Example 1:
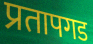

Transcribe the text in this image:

प्रतापगड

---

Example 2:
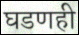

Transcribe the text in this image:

घडणही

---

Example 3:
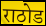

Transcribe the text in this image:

राठोड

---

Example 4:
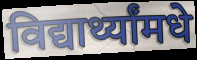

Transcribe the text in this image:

विद्यार्थ्यांमधे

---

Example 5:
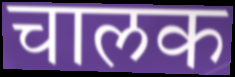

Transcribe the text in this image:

चालक